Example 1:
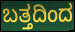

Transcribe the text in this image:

ಬತ್ತದಿಂದ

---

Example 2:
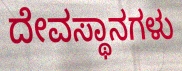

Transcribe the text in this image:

ದೇವಸ್ಥಾನಗಳು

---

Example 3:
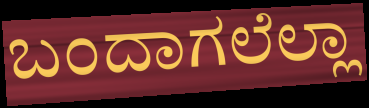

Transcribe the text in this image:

ಬಂದಾಗಲೆಲ್ಲಾ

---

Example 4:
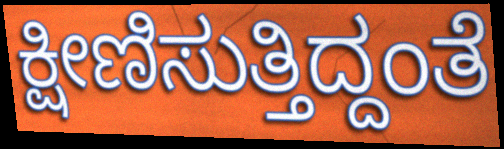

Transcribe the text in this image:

ಕ್ಷೀಣಿಸುತ್ತಿದ್ದಂತೆ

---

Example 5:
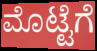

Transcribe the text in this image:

ಮೊಟ್ಟೆಗೆ